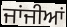
ਜਾਂਜੀਆਂ